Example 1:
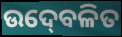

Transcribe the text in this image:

ଉଦ୍‍ବେଳିତ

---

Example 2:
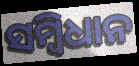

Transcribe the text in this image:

ସମ୍ୱିଧାନ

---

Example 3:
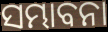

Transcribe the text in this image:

ସମ୍ଭାବନା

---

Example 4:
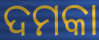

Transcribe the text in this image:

ଦମକା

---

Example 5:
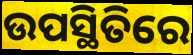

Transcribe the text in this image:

ଉପସ୍ଥିତିରେ